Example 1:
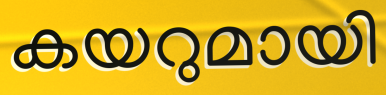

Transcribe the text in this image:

കയറുമായി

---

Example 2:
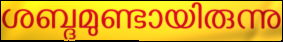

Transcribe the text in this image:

ശബ്ദമുണ്ടായിരുന്നു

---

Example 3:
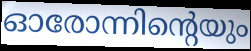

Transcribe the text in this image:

ഓരോന്നിന്റെയും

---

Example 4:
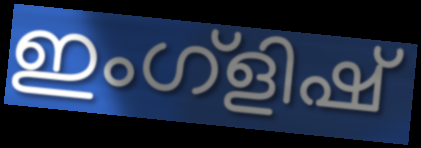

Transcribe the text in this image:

ഇംഗ്ളിഷ്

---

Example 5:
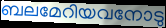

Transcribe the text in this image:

ബലമേറിയവനോടു